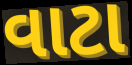
વાટા